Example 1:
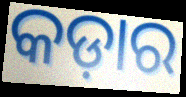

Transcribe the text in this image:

କଡ଼ାର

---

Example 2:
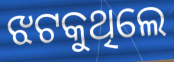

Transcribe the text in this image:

ଝଟକୁଥିଲେ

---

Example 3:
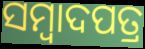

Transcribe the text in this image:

ସମ୍ୱାଦପତ୍ର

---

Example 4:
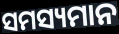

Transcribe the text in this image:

ସମସ୍ୟମାନ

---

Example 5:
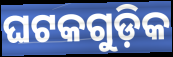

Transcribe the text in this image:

ଘଟକଗୁଡ଼ିକ